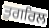
ਤੁਗਰਿਲ